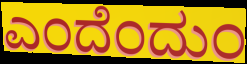
ಎಂದೆಂದುಂ